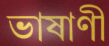
ভাষাণী